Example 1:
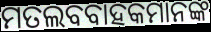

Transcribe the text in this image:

ମତଲବବାହକମାନଙ୍କ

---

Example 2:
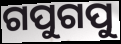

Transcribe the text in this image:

ଗପୁଗପୁ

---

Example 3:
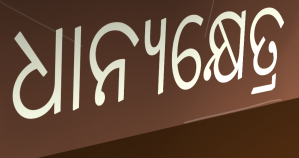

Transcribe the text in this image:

ଧାନ୍ୟକ୍ଷେତ୍ର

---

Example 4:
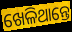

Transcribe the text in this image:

ଖେଳିଥାନ୍ତେ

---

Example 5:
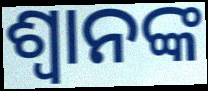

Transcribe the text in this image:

ଶ୍ବାନଙ୍କ